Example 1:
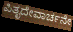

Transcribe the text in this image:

ಪಿತೃದೇವಾರ್ಚನೇ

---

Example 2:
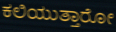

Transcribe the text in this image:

ಕಲಿಯುತ್ತಾರೋ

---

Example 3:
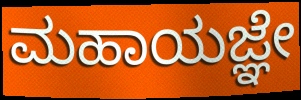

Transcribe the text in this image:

ಮಹಾಯಜ್ಞೇ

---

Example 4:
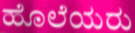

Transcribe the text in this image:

ಹೊಲೆಯರು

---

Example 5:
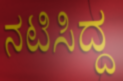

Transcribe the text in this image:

ನಟಿಸಿದ್ದ